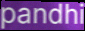
pandhi